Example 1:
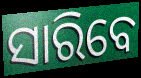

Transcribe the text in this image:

ସାରିବେ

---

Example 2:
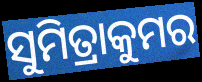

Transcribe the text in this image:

ସୁମିତ୍ରାକୁମର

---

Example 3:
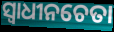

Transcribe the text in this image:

ସ୍ବାଧୀନଚେତା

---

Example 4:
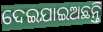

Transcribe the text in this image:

ଦେଇଯାଇଅଛନ୍ତି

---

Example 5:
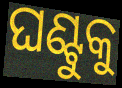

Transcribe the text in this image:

ଘଣ୍ଟୁକୁ